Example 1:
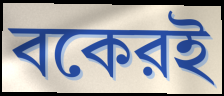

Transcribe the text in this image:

বকেরই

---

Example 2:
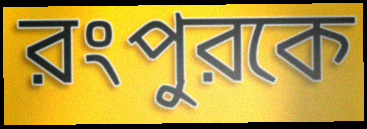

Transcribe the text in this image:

রংপুরকে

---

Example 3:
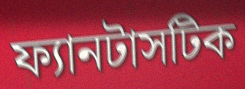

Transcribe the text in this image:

ফ্যানটাসটিক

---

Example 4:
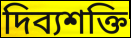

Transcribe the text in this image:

দিব্যশক্তি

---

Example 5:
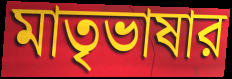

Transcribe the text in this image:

মাতৃভাষার